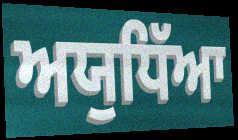
ਅਯੁਧਿੱਆ